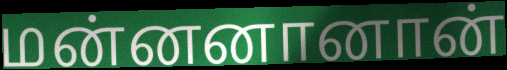
மன்னனானான்